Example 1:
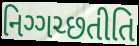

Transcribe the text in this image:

નિગ્ગચ્છતીતિ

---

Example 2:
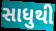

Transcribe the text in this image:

સાધુથી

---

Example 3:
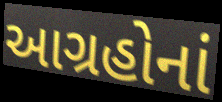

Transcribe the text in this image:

આગ્રહોનાં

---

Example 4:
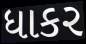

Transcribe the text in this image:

ધાકર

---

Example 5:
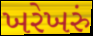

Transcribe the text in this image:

ખરેખરું